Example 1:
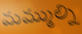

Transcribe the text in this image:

మమ్ముల్ని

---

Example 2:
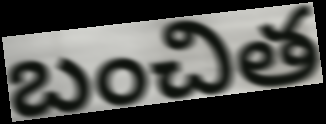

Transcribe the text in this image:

బంచిత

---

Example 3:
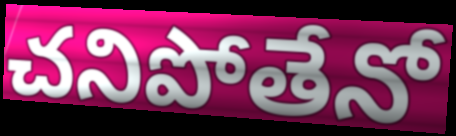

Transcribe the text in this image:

చనిపోతేనో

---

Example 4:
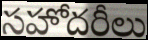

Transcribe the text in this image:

సహోదరీలు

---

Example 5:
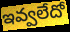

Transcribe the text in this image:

ఇవ్వలేదో